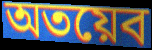
অতয়েব